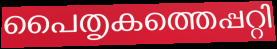
പൈതൃകത്തെപ്പറ്റി